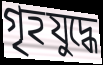
গৃহযুদ্ধে